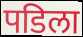
पडिला